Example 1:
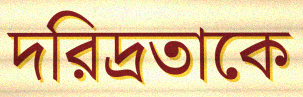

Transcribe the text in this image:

দরিদ্রতাকে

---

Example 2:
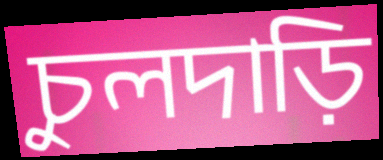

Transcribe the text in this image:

চুলদাড়ি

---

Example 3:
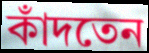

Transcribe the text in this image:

কাঁদতেন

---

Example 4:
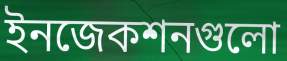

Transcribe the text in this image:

ইনজেকশনগুলো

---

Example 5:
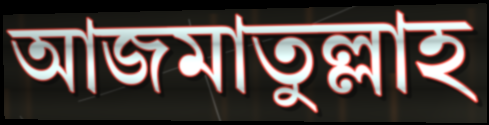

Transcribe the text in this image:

আজমাতুল্লাহ